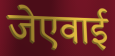
जेएवाई